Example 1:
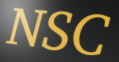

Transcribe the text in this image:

NSC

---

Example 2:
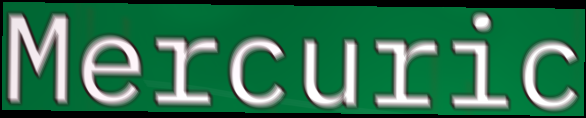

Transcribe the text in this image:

Mercuric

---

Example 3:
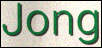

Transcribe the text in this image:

Jong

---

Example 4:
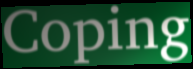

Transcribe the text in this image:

Coping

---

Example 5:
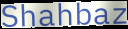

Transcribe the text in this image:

Shahbaz